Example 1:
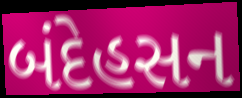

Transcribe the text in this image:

બંદેહસન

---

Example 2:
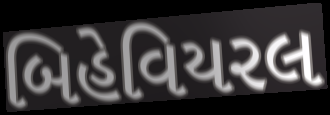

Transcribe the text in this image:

બિહેવિયરલ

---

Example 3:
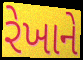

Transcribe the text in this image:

રેખાને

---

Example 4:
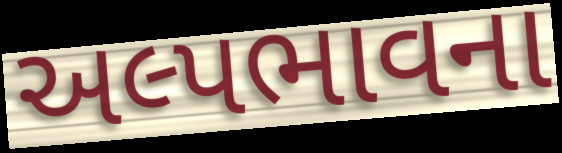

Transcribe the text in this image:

અલ્પભાવના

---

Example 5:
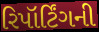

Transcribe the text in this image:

રિપૉર્ટિંગની